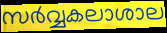
സർവ്വകലാശാല